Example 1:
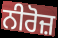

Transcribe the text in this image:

ਨੀਰੋਜ਼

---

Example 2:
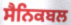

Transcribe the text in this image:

ਸੈਨਿਕਬਲ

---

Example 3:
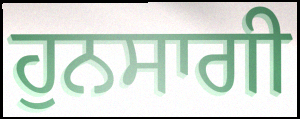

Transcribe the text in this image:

ਹੁਨਸਾਗੀ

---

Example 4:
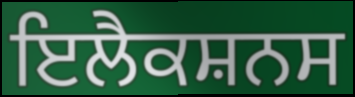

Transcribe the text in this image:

ਇਲੈਕਸ਼ਨਸ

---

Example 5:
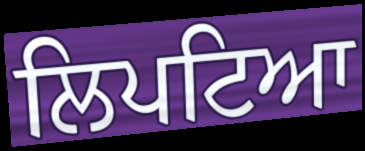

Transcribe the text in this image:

ਲਿਪਟਿਆ